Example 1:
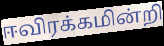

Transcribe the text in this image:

ஈவிரக்கமின்றி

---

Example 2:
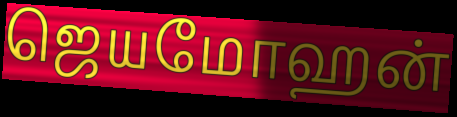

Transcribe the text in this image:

ஜெயமோஹன்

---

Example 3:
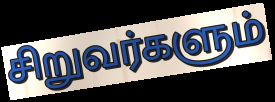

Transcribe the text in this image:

சிறுவர்களும்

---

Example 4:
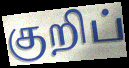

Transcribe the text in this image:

குறிப்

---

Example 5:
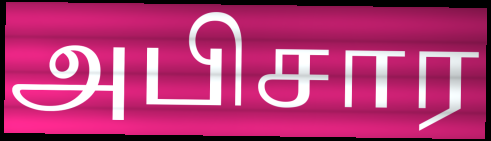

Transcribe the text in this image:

அபிசார